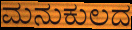
ಮನುಕುಲದ